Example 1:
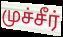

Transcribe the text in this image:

முச்சீர்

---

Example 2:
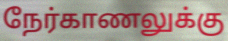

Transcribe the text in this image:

நேர்காணலுக்கு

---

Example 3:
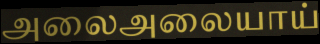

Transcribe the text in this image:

அலைஅலையாய்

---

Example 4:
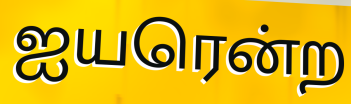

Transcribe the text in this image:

ஐயரென்ற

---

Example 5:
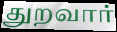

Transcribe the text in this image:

துறவார்